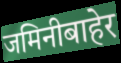
जमिनीबाहेर